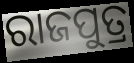
ରାଜପୁତ୍ର